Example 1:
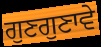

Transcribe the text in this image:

ਗੁਣਗੁਣਾਵੇ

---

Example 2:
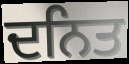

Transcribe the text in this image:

ਦਨਿਤ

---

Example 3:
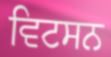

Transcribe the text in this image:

ਵਿਟਸਨ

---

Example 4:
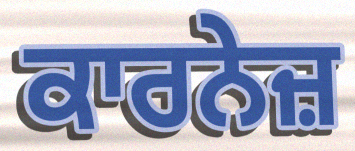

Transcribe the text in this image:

ਕਾਰਨੇਜ਼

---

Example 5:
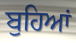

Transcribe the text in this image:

ਬੁਹਿਆਂ